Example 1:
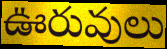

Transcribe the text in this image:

ఊరువులు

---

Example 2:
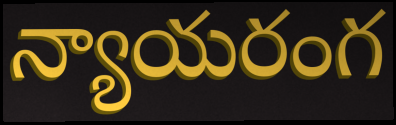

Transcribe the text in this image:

న్యాయరంగ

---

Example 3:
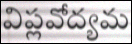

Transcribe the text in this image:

విప్లవోద్యమ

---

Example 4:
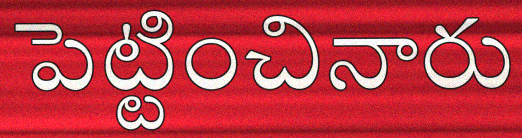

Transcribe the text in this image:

పెట్టించినారు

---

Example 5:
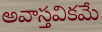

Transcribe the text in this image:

అవాస్తవికమే